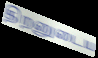
திறனுடைய